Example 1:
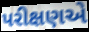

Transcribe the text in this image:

પરીક્ષણએ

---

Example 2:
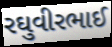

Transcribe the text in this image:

રઘુવીરભાઈ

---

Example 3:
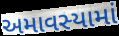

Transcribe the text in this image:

અમાવસ્યામાં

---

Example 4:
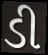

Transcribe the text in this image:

ડી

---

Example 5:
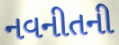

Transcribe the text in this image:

નવનીતની